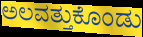
ಅಲವತ್ತುಕೊಂಡು